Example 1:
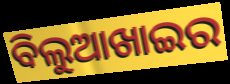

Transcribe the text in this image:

ବିଲୁଆଖାଇର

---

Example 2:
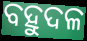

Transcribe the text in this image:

ବହୁଦଳ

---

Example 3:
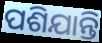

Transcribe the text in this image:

ପଶିଯାନ୍ତି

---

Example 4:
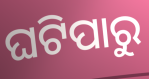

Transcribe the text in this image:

ଘଟିପାରୁ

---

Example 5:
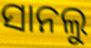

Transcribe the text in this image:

ସାନଲୁ